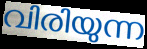
വിരിയുന്ന